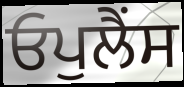
ਓਪੁਲੈਂਸ